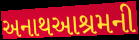
અનાથઆશ્રમની